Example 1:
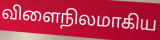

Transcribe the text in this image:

விளைநிலமாகிய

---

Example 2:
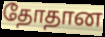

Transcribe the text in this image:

தோதான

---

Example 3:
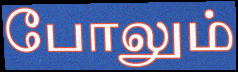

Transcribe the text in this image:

போலும்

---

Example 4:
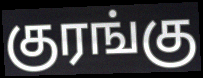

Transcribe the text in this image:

குரங்கு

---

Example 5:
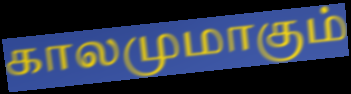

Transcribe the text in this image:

காலமுமாகும்